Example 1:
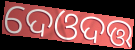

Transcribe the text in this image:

ଦେଓଦତ୍ତ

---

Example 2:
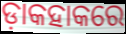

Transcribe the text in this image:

ଡ଼ାକହାକରେ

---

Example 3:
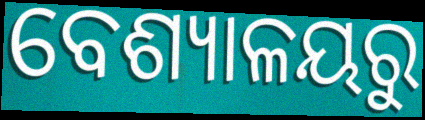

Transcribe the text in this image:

ବେଶ୍ୟାଳୟରୁ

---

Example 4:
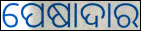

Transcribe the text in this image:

ପେଷାଦାର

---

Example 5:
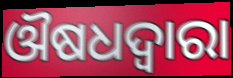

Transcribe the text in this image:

ଔଷଧଦ୍ବାରା